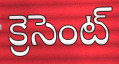
క్రెసెంట్